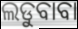
ଲଡୁବାବା